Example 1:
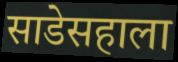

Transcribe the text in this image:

साडेसहाला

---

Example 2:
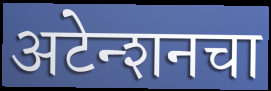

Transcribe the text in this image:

अटेन्शनचा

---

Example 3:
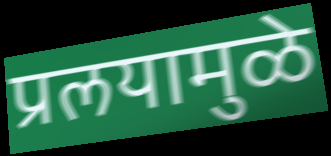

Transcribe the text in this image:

प्रलयामुळे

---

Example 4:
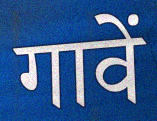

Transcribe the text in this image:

गावें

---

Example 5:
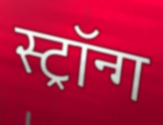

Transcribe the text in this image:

स्ट्रॉन्ग